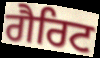
ਗੈਰਿਟ